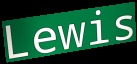
Lewis